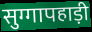
सुग्गापहाड़ी